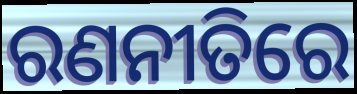
ରଣନୀତିରେ